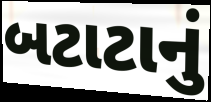
બટાટાનું